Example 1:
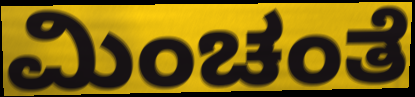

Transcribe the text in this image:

ಮಿಂಚಂತೆ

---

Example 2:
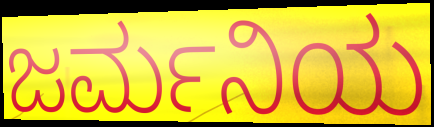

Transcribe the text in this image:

ಜರ್ಮನಿಯ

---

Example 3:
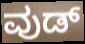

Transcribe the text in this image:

ವುಡ್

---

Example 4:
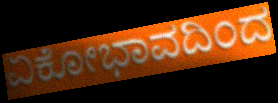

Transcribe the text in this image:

ಏಕೋಭಾವದಿಂದ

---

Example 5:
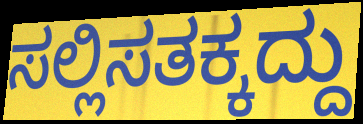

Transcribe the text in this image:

ಸಲ್ಲಿಸತಕ್ಕದ್ದು